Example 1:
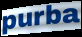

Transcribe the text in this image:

purba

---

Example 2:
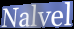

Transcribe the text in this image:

Nalvel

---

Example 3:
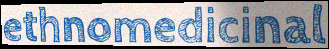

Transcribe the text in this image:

ethnomedicinal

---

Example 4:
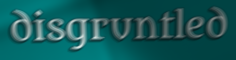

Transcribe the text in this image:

disgruntled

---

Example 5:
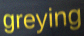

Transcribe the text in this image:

greying